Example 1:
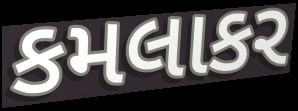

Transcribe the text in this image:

કમલાકર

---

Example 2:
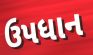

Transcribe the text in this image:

ઉપધાન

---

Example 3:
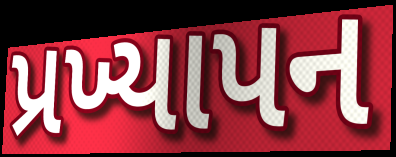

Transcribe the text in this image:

પ્રખ્યાપન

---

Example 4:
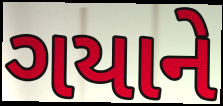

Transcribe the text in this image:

ગયાને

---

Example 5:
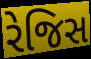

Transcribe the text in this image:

રેજિસ